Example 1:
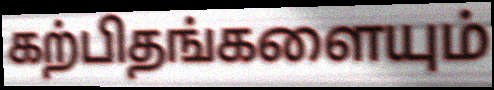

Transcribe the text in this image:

கற்பிதங்களையும்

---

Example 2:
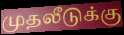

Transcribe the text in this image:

முதலீடுக்கு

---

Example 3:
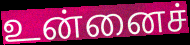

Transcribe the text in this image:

உன்னைச்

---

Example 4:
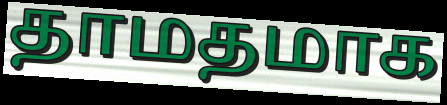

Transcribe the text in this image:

தாமதமாக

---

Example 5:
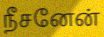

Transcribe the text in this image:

நீசனேன்